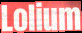
Lolium